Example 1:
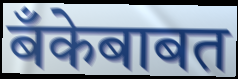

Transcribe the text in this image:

बँकेबाबत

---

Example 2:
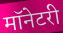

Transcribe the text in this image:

मॉनेटरी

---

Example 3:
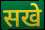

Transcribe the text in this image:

सखे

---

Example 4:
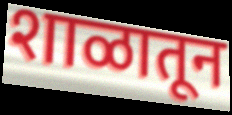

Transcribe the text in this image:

शाळातून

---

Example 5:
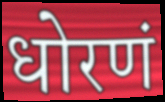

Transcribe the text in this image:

धोरणं